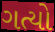
ગત્યો